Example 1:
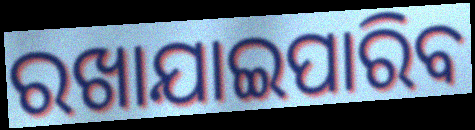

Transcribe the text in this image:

ରଖାଯାଇପାରିବ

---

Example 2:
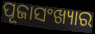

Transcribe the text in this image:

ପୂଜାସଂଖ୍ୟାର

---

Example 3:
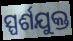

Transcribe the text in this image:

ସ୍ପର୍ଶଯୁକ୍ତ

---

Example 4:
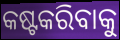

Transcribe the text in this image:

କଷ୍ଟକରିବାକୁ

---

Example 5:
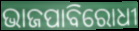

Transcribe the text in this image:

ଭାଜପାବିରୋଧୀ